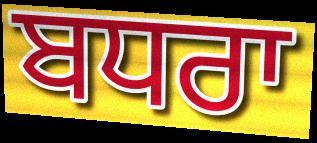
ਬਧਰਾ